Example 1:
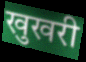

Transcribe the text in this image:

खुखरी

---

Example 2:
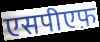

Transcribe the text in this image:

एसपीएफ़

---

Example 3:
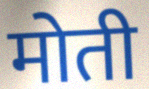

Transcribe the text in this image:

मोती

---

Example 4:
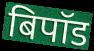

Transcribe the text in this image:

बिपॉड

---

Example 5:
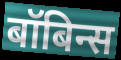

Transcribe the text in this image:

बॉबिन्स